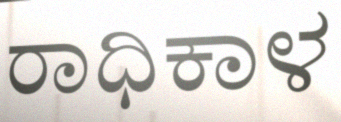
ರಾಧಿಕಾಳ